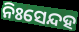
ନିଃସେନ୍ଦହ